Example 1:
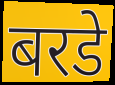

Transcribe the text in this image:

बरडे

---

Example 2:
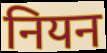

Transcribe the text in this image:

नियन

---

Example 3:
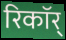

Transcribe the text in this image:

रिकॉर्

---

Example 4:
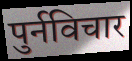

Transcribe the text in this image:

पुर्नविचार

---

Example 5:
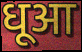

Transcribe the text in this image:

धूआ